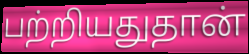
பற்றியதுதான்